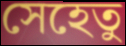
সেহেতু